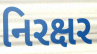
નિરક્ષર